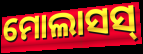
ମୋଲାସସ୍